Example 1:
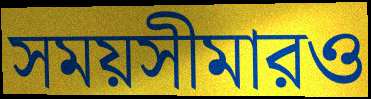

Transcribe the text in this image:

সময়সীমারও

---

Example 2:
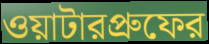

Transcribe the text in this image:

ওয়াটারপ্রুফের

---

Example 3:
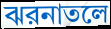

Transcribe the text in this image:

ঝরনাতলে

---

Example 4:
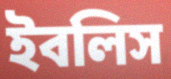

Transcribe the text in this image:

ইবলিস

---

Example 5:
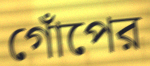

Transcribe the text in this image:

গোঁপের